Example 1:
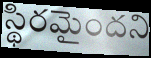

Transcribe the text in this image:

స్థిరమైందని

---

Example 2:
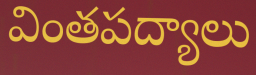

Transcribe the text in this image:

వింతపద్యాలు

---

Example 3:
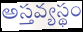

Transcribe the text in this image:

అస్తవ్యస్థం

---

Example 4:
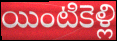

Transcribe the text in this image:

యింటికెళ్లి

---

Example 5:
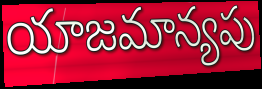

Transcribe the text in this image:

యాజమాన్యపు